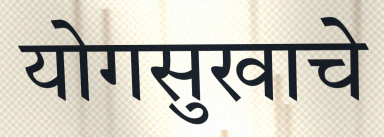
योगसुखाचे